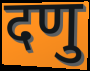
दणु